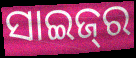
ସାଇଜ୍‌ର